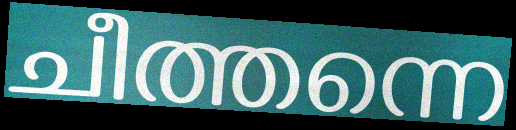
ചീത്തന്നെ